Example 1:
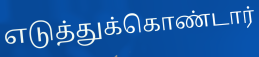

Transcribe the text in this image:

எடுத்துக்கொண்டார்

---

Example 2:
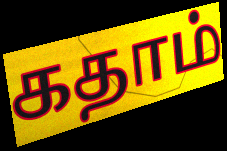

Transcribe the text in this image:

கதாம்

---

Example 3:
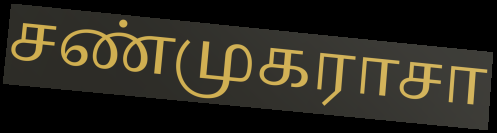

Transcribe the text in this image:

சண்முகராசா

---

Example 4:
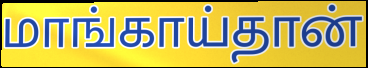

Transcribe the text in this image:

மாங்காய்தான்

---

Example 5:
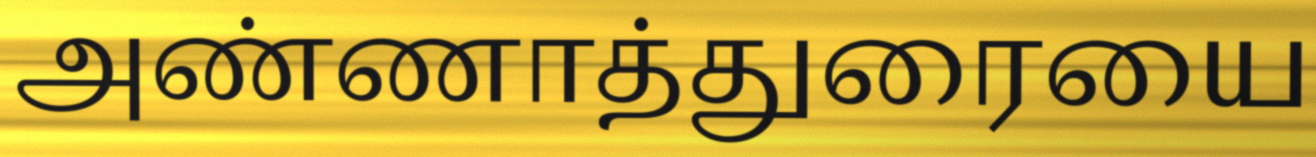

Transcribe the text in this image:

அண்ணாத்துரையை